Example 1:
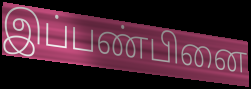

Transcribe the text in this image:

இப்பண்பினை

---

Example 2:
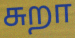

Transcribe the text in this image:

சுறா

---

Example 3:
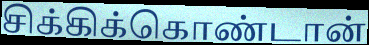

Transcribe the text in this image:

சிக்கிக்கொண்டான்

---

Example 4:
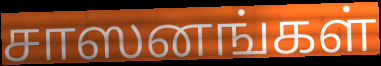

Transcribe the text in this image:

சாஸனங்கள்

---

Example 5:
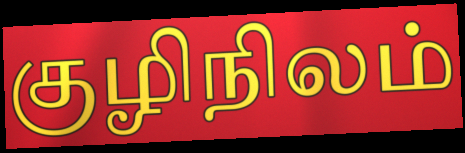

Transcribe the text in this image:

குழிநிலம்